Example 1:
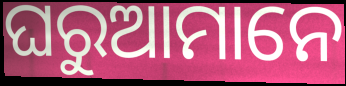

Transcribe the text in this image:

ଘରୁଆମାନେ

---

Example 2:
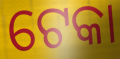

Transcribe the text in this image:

ଟେକା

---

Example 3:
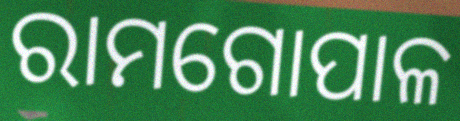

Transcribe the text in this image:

ରାମଗୋପାଳ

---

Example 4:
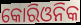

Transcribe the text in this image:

କୋରିଓନିକ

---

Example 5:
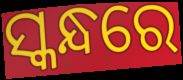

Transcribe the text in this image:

ସ୍କନ୍ଧରେ